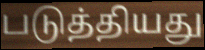
படுத்தியது